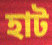
হাট